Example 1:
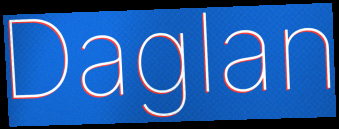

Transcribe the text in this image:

Daglan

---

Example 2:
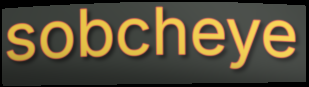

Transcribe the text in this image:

sobcheye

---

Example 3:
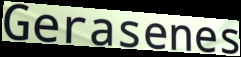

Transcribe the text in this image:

Gerasenes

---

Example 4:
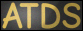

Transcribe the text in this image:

ATDS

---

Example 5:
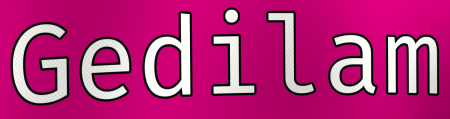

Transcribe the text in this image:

Gedilam